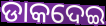
ଡାକଦେଇ